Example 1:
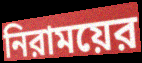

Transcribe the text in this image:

নিরাময়ের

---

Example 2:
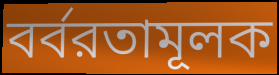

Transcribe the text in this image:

বর্বরতামূলক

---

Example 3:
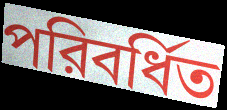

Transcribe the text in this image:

পরিবর্ধিত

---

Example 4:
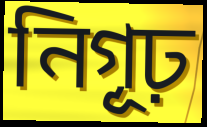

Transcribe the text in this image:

নিগূঢ়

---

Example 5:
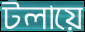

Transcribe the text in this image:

টলায়ে